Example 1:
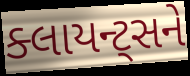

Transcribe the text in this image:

ક્લાયન્ટ્સને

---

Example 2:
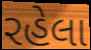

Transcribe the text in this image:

રહેલા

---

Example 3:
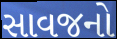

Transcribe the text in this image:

સાવજનો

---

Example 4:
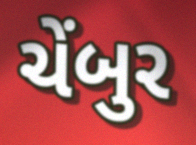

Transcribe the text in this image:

ચેંબુર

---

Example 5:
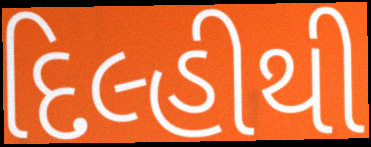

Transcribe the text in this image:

દિલ્હીથી